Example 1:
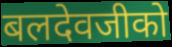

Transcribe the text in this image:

बलदेवजीको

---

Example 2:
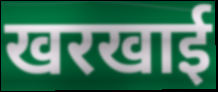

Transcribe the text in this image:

खरखाई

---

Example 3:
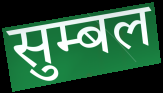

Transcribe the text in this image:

सुम्बल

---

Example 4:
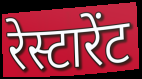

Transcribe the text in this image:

रेस्टारेंट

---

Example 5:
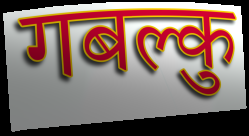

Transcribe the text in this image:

गबल्कु